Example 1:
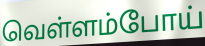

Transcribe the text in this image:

வெள்ளம்போய்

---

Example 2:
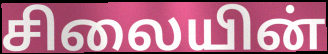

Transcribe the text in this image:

சிலையின்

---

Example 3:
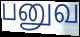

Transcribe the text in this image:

பனுவ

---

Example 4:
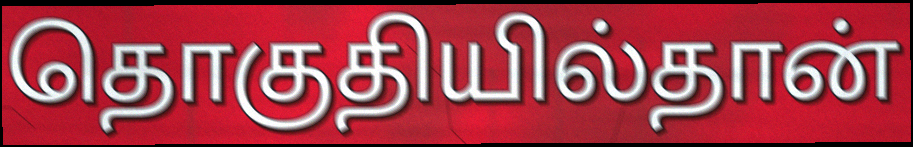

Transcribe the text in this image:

தொகுதியில்தான்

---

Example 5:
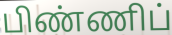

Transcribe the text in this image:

பிண்ணிப்